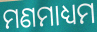
ମଣମାଧ୍ୟମ